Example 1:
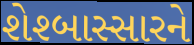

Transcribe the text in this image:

શેશ્બાસ્સારને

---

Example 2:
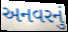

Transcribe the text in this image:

અનવરનું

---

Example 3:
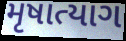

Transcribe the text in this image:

મૃષાત્યાગ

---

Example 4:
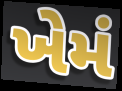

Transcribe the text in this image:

ખેમં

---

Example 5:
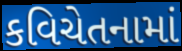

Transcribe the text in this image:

કવિચેતનામાં